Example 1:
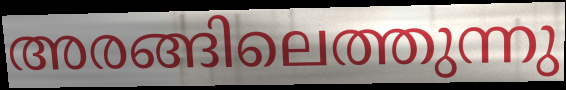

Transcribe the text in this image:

അരങ്ങിലെത്തുന്നു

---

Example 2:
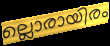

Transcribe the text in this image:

ല്ലൊരായിരം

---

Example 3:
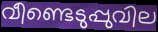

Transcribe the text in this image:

വീണ്ടെടുപ്പുവില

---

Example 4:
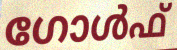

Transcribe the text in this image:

ഗോൾഫ്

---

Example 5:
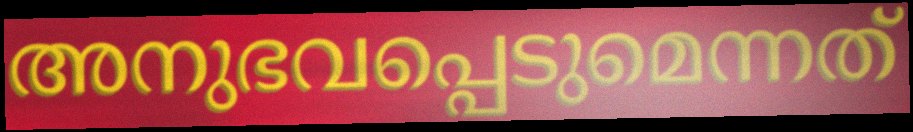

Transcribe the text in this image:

അനുഭവപ്പെടുമെന്നത്